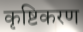
कृष्टिकरण